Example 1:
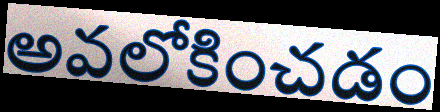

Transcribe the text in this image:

అవలోకించడం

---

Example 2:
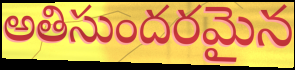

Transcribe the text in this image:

అతిసుందరమైన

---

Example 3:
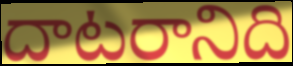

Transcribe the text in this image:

దాటరానిది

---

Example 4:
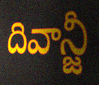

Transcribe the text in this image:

దివాన్జీ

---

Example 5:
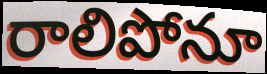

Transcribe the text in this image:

రాలిపోనూ